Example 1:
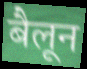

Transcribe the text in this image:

बैलून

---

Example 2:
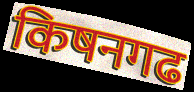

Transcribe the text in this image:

किषनगढ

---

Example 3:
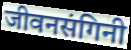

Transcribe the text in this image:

जीवनसंगिनी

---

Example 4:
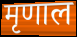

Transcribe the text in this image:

मृणाल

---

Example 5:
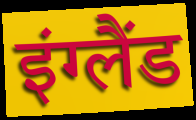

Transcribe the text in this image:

इंग्‍लैंड